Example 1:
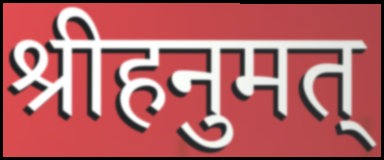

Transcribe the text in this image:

श्रीहनुमत्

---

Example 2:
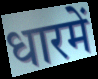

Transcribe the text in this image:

धारमें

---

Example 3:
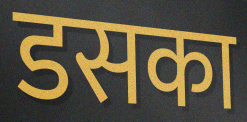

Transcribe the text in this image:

डसका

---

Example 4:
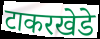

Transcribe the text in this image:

टाकरखेडे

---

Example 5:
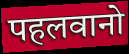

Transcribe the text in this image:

पहलवानो